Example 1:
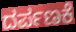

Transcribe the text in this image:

ದರ್ಪಣಕೆ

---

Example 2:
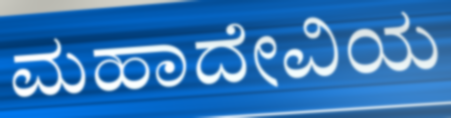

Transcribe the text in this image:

ಮಹಾದೇವಿಯ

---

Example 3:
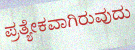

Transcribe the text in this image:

ಪ್ರತ್ಯೇಕವಾಗಿರುವುದು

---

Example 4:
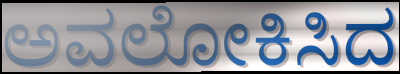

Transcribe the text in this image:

ಅವಲೋಕಿಸಿದ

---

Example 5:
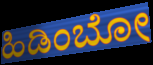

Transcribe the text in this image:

ಹಿಡಿಂಬೋ